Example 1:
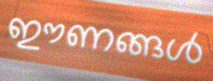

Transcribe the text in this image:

ഈണങ്ങൾ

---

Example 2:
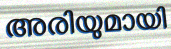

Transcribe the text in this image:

അരിയുമായി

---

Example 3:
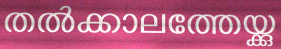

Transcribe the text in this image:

തൽക്കാലത്തേയ്ക്കു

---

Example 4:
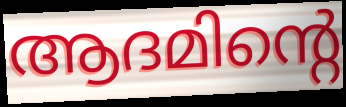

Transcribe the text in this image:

ആദമിന്റെ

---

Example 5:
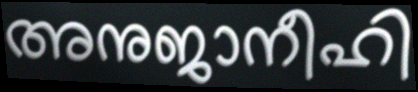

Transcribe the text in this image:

അനുജാനീഹി